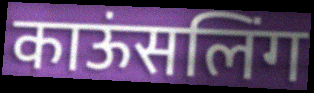
काऊंसलिंग